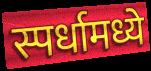
स्पर्धामध्ये